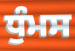
ਧੁੰਮਸ